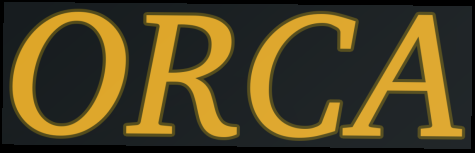
ORCA